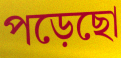
পড়েছো